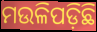
ମଉଳିପଡ଼ିଛି